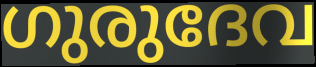
ഗുരുദേവ